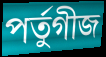
পর্তুগীজ